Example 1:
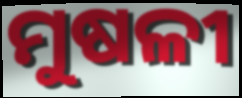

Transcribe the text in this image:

ମୁଷଳୀ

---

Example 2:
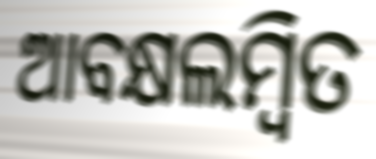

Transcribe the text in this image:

ଆବକ୍ଷଲମ୍ବିତ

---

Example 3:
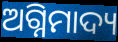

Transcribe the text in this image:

ଅଗ୍ନିମାଦ୍ୟ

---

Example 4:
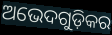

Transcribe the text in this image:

ଅଭେଦଗୁଡ଼ିକର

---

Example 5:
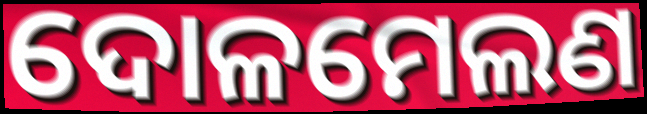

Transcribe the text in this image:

ଦୋଳମେଲଣ